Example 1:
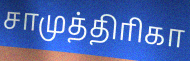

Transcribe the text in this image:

சாமுத்திரிகா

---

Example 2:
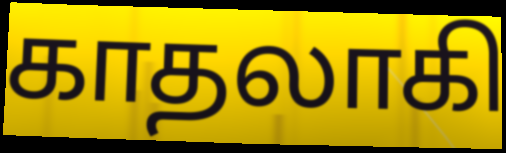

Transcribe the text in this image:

காதலாகி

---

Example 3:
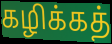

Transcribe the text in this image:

கழிக்கத்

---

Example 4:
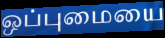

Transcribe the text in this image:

ஒப்புமையை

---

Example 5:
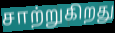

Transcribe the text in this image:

சாற்றுகிறது